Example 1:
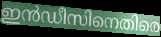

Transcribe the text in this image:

ഇൻഡീസിനെതിരെ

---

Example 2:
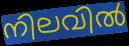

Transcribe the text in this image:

നിലവിൽ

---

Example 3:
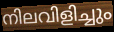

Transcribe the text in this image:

നിലവിളിച്ചും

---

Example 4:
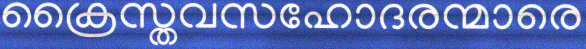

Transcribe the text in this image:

ക്രൈസ്തവസഹോദരന്മാരെ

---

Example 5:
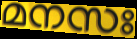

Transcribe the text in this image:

മനസഃ